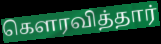
கௌரவித்தார்